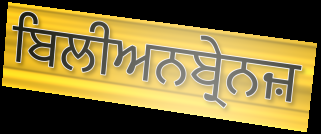
ਬਿਲੀਅਨਬ੍ਰੇਨਜ਼